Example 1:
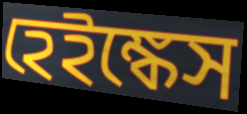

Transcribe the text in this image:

হেইঙ্কেস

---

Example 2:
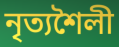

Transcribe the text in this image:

নৃত্যশৈলী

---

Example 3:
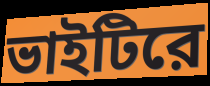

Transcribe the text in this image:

ভাইটিরে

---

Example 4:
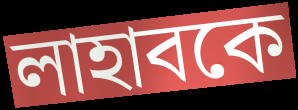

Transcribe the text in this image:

লাহাবকে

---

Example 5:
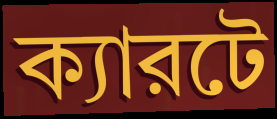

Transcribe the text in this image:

ক্যারটে